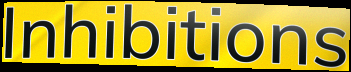
Inhibitions